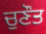
ਚੁਣੌਤ